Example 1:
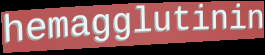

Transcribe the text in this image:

hemagglutinin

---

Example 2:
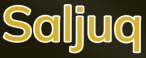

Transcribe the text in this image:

Saljuq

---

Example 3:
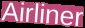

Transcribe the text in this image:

Airliner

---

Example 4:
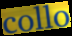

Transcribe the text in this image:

collo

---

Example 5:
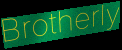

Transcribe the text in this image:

Brotherly